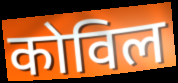
कोविल